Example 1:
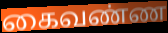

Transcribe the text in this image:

கைவண்ண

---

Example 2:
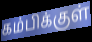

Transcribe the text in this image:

கம்பிக்குள்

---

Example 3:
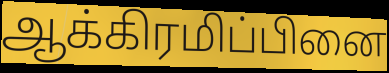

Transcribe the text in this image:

ஆக்கிரமிப்பினை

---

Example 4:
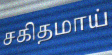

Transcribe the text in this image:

சகிதமாய்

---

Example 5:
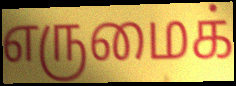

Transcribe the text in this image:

எருமைக்